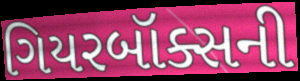
ગિયરબૉક્સની